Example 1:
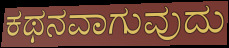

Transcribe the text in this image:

ಕಥನವಾಗುವುದು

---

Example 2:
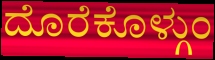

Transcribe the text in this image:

ದೊರೆಕೊಳ್ಗುಂ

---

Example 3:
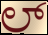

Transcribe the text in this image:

ಲ್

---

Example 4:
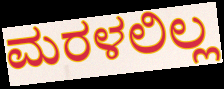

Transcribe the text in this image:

ಮರಳಲಿಲ್ಲ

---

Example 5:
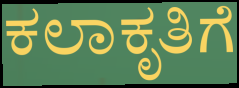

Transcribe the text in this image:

ಕಲಾಕೃತಿಗೆ